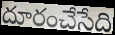
దూరంచేసేది